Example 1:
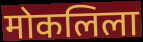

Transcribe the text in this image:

मोकलिला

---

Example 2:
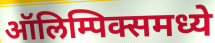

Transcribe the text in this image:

ऑलिम्पिक्समध्ये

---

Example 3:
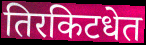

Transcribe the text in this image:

तिरकिटधेत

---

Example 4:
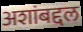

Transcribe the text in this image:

अशांबद्दल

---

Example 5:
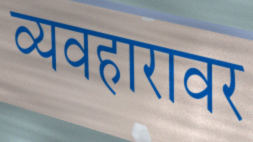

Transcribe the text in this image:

व्यवहारावर